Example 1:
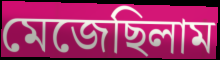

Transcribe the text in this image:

মেজেছিলাম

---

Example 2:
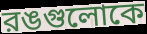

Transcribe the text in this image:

রঙগুলোকে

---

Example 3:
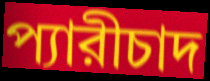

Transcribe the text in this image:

প্যারীচাদ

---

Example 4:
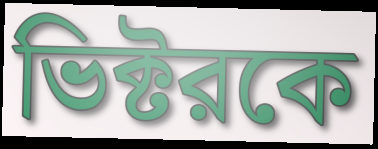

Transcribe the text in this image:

ভিক্টরকে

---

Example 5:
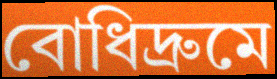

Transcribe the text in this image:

বোধিদ্রুমে